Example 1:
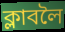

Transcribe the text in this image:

ক্লাবলৈ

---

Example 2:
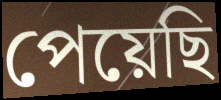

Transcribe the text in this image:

পেয়েছি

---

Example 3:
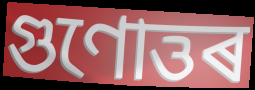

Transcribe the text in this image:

গুণোত্তৰ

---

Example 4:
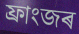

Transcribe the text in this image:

ফ্ৰাংজৰ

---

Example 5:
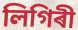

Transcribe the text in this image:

লিগিৰী